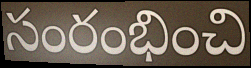
సంరంభించి